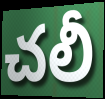
చలీ